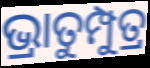
ଭ୍ରାତୁମ୍ପୁତ୍ର